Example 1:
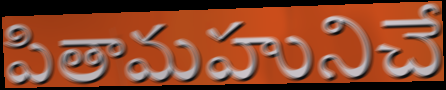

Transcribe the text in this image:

పితామహునిచే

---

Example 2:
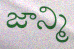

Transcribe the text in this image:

జాన్మి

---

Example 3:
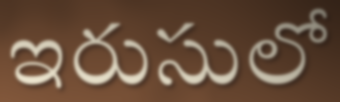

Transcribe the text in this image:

ఇరుసులో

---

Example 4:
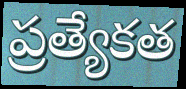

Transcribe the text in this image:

ప్రత్యేకత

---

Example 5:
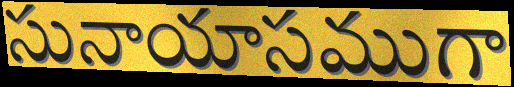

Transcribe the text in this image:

సునాయాసముగా